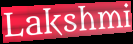
Lakshmi